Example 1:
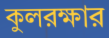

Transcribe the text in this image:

কুলরক্ষার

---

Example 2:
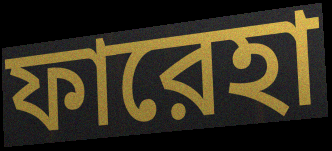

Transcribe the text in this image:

ফারেহা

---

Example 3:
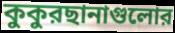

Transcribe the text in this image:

কুকুরছানাগুলোর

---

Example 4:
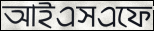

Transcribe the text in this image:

আইএসএফে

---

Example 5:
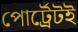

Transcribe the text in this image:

পোর্ট্রেটই